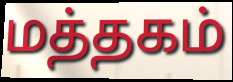
மத்தகம்